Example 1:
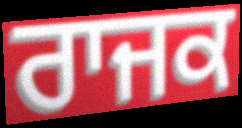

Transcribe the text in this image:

ਰਾਜਕ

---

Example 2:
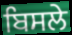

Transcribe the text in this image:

ਬਿਸਲੇ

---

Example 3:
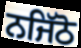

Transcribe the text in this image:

ਨਜਿੱਠੋ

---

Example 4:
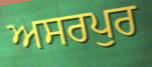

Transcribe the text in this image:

ਅਸਰਪੁਰ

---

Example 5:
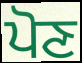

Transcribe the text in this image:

ਪੋਣ